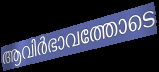
ആവിർഭാവത്തോടെ